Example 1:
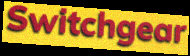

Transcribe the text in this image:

Switchgear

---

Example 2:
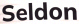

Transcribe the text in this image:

Seldon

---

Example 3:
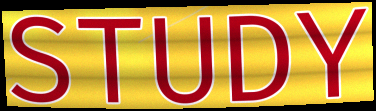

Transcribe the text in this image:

STUDY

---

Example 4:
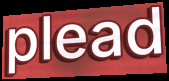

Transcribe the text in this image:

plead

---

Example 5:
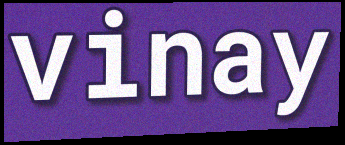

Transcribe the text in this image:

vinay